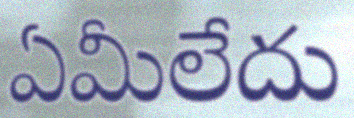
ఏమీలేదు